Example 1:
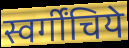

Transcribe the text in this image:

स्वर्गींचिये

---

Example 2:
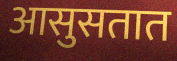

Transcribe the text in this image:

आसुसतात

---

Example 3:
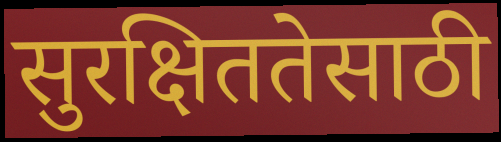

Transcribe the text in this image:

सुरक्षिततेसाठी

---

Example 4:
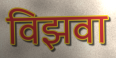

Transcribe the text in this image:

विझवा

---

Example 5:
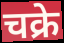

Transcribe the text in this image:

चक्रे